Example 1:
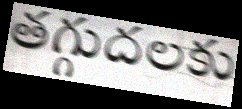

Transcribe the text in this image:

తగ్గుదలకు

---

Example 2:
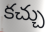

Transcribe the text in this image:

కచ్చు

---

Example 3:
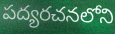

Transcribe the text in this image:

పద్యరచనలోని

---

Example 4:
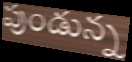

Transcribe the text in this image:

పుండున్న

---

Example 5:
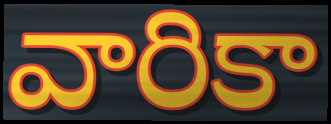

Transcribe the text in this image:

వారికా